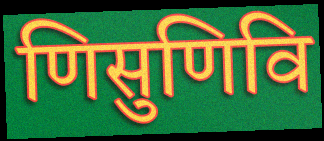
णिसुणिवि